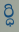
ర్ధి